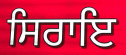
ਸਿਰਾਇ